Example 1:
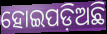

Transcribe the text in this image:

ହୋଇପଡ଼ିଅଛି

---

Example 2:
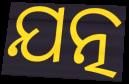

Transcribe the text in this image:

ଯତ୍ନ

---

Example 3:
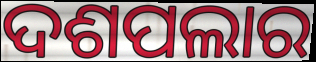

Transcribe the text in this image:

ଦଶପଲାର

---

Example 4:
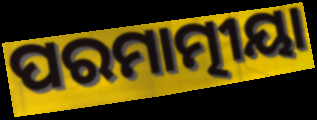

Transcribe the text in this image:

ପରମାତ୍ମୀୟା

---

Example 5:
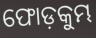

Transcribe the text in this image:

ଫୋଡ଼କୁମ୍ଭ